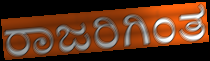
ರಾಜರಿಗಿಂತ